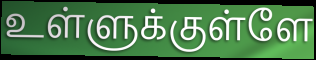
உள்ளுக்குள்ளே